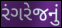
રંગરેજનું